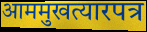
आममुखत्यारपत्र